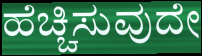
ಹೆಚ್ಚಿಸುವುದೇ